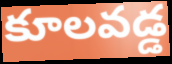
కూలవడ్డ